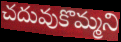
చదువుకొమ్మని